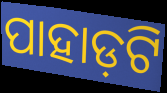
ପାହାଡ଼ଟି